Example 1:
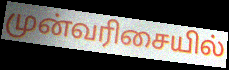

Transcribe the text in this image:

முன்வரிசையில்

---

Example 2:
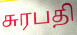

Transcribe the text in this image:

சுரபதி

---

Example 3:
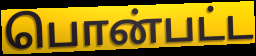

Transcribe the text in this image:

பொன்பட்ட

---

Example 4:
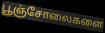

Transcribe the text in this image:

பூஞ்சோலைகளை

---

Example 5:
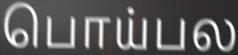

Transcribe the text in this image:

பொய்பல